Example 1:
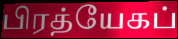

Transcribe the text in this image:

பிரத்யேகப்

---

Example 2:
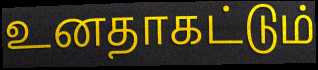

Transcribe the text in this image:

உனதாகட்டும்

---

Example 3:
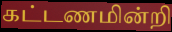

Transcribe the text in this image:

கட்டணமின்றி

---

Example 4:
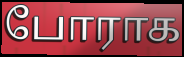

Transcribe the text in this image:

போராக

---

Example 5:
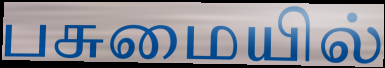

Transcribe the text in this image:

பசுமையில்